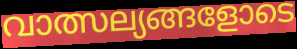
വാത്സല്യങ്ങളോടെ